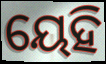
ୟେହି